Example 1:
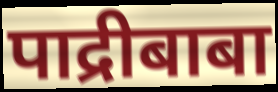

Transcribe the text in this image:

पाद्रीबाबा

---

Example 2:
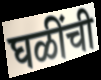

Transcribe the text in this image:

घळींची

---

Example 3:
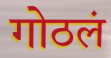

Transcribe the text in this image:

गोठलं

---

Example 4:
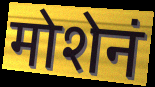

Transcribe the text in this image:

मोशेनं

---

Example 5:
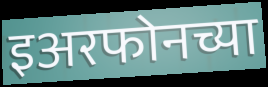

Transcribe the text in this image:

इअरफोनच्या